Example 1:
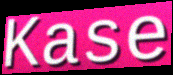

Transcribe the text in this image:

Kase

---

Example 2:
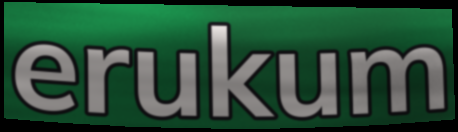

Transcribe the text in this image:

erukum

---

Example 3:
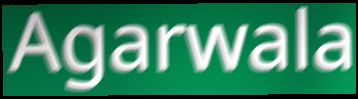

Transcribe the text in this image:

Agarwala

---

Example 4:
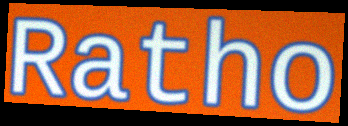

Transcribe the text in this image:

Ratho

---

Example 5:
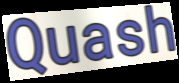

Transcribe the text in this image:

Quash